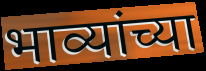
भाव्यांच्या